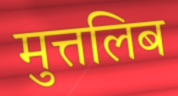
मुत्तलिब